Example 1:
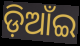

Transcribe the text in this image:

ଡ଼ିଆଁଇ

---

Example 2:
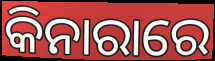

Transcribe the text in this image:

କିନାରାରେ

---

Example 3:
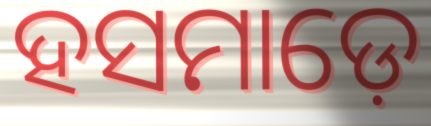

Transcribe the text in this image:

ହସମାଡ଼େ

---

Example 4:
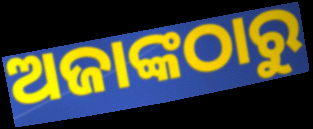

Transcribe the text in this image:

ଅଜାଙ୍କଠାରୁ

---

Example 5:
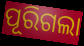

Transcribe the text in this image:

ପୂରିଗଲା